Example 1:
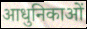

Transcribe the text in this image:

आधुनिकाओं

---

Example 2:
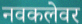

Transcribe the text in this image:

नवकलेवर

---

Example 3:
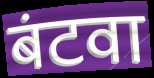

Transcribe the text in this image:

बंटवा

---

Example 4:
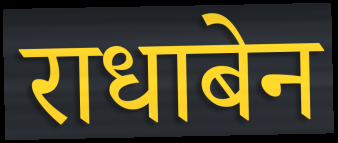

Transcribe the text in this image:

राधाबेन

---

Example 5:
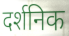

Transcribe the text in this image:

दर्शनिक